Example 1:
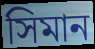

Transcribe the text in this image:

সিমান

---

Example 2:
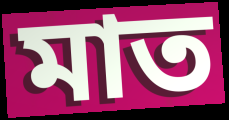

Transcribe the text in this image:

মাত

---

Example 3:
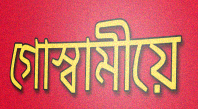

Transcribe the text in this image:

গোস্বামীয়ে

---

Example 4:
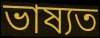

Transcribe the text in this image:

ভাষ্যত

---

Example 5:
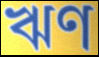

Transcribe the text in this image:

ঋণ